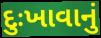
દુઃખાવાનું